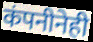
कंपनीनेही